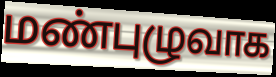
மண்புழுவாக